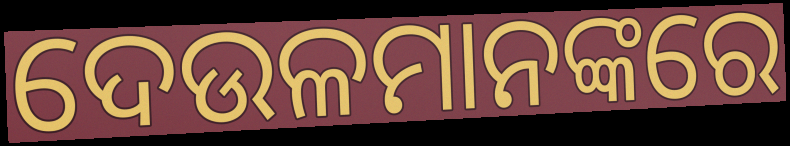
ଦେଉଳମାନଙ୍କରେ